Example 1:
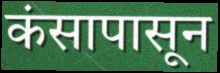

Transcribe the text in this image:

कंसापासून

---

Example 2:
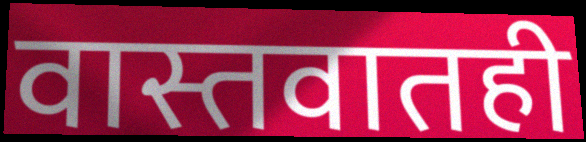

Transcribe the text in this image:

वास्तवातही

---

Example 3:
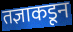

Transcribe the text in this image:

तज्ञाकडून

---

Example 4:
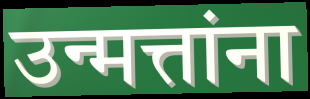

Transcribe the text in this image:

उन्मत्तांना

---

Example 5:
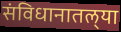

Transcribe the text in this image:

संविधानातल्या